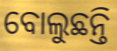
ବୋଲୁଛନ୍ତି